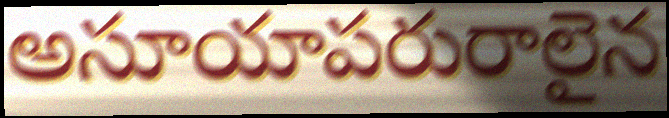
అసూయాపరురాలైన